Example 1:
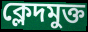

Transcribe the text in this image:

ক্লেদমুক্ত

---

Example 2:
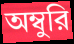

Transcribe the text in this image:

অম্বুরি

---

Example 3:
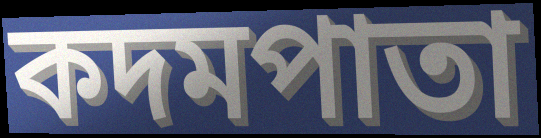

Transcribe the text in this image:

কদমপাতা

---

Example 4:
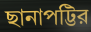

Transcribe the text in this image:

ছানাপট্টির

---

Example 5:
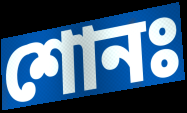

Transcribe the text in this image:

শোনঃ